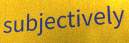
subjectively